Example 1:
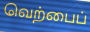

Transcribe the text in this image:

வெற்பைப்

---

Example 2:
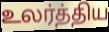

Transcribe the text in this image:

உலர்த்திய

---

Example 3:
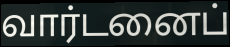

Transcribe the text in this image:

வார்டனைப்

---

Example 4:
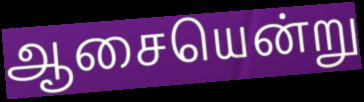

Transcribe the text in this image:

ஆசையென்று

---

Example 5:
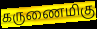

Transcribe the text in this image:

கருணைமிகு